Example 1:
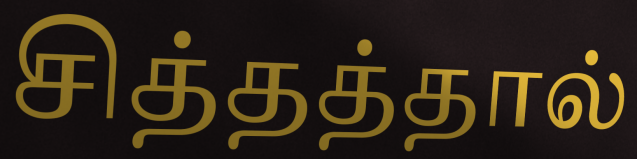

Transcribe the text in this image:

சித்தத்தால்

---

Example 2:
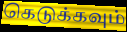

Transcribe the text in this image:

கெடுக்கவும்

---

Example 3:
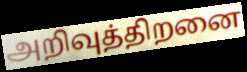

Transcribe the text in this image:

அறிவுத்திறனை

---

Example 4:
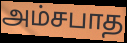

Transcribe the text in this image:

அம்சபாத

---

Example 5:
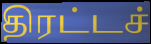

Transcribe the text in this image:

திரட்டச்